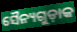
ସୈନ୍ୟଗୁଡ଼ାକ